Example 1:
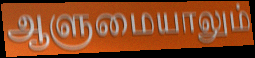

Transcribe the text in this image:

ஆளுமையாலும்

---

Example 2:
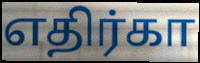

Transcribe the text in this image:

எதிர்கா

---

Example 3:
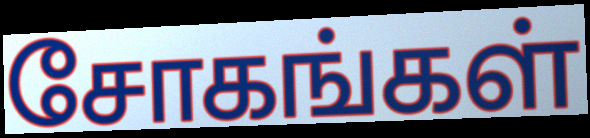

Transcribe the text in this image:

சோகங்கள்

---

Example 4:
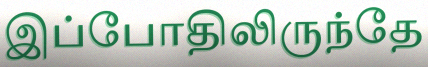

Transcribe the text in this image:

இப்போதிலிருந்தே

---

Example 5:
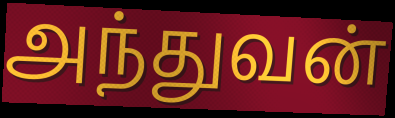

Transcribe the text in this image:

அந்துவன்